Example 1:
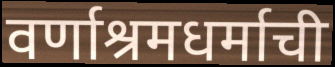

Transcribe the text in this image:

वर्णाश्रमधर्माची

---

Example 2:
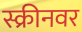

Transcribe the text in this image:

स्क्रीनवर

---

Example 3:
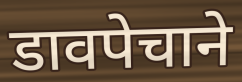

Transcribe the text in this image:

डावपेचाने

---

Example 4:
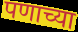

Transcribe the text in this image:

पणाच्या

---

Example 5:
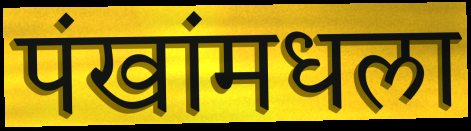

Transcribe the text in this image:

पंखांमधला